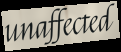
unaffected